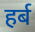
हर्ब